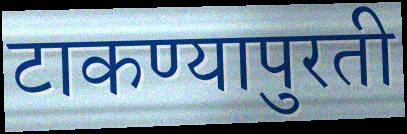
टाकण्यापुरती